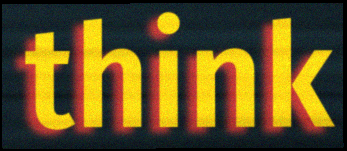
think